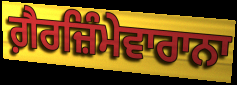
ਗ਼ੈਰਜ਼ਿੰਮੇਵਾਰਾਨਾ